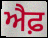
ਐਫ਼